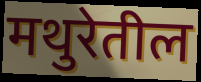
मथुरेतील